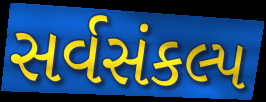
સર્વસંકલ્પ